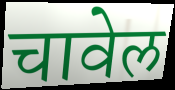
चावेल